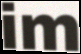
im